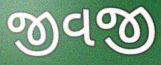
જીવજી